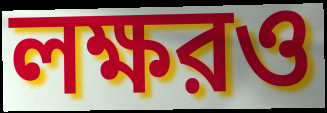
লক্ষরও